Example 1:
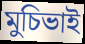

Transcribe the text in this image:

মুচিভাই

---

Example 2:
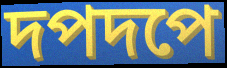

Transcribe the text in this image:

দপদপে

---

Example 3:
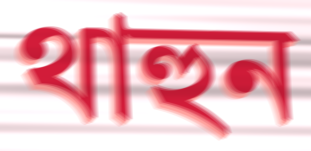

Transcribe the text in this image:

থাহুন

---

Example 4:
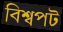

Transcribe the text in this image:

বিশ্বপট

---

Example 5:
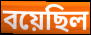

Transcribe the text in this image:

বয়েছিল